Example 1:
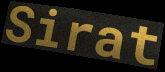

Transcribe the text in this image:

Sirat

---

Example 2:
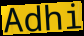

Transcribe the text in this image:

Adhi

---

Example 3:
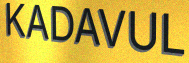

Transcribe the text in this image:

KADAVUL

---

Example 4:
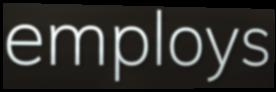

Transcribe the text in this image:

employs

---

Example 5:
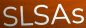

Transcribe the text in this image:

SLSAs